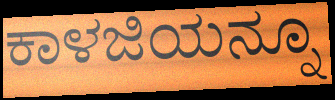
ಕಾಳಜಿಯನ್ನೂ